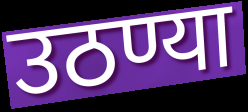
उठण्या